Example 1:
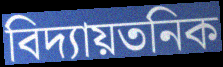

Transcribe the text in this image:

বিদ্যায়তনিক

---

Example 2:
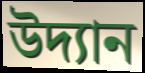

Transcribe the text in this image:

উদ্যান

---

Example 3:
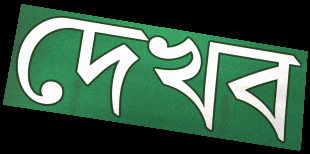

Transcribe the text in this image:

দেখব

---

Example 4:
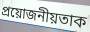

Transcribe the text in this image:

প্ৰয়োজনীয়তাক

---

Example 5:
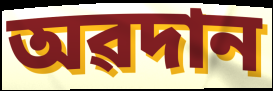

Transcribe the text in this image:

অৱদান